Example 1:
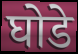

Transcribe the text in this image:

घोडे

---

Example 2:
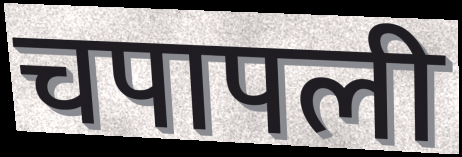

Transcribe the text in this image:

चपापली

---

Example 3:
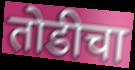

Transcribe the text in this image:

तोडीचा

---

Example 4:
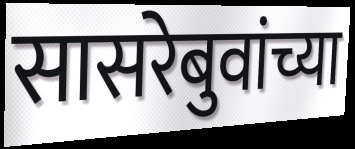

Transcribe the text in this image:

सासरेबुवांच्या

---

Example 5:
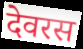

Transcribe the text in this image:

देवरस